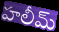
హలీమ్